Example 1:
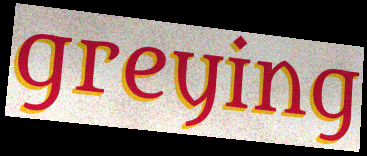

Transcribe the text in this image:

greying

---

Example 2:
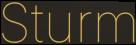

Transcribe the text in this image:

Sturm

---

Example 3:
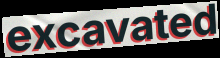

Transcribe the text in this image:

excavated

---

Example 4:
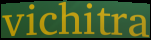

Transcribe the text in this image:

vichitra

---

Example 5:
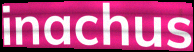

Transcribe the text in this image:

inachus